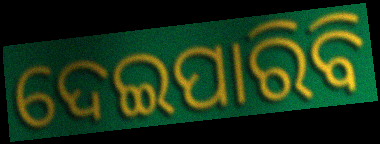
ଦେଇପାରିବି